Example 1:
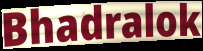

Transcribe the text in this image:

Bhadralok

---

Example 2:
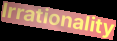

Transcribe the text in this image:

Irrationality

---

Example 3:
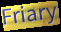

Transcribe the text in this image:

Friary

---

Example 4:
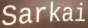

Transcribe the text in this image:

Sarkai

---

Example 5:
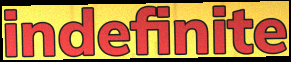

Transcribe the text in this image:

indefinite